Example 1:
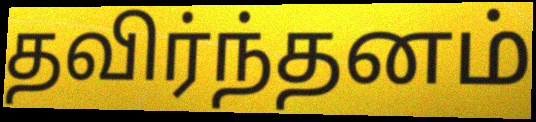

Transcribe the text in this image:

தவிர்ந்தனம்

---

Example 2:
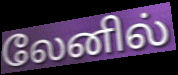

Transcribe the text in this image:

லேனில்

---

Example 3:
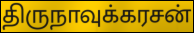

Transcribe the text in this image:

திருநாவுக்கரசன்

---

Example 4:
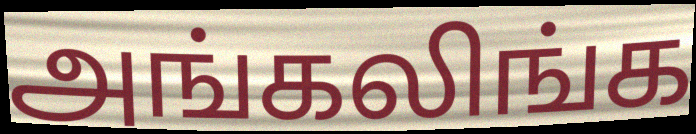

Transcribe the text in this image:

அங்கலிங்க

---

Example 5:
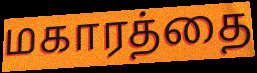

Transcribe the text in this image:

மகாரத்தை